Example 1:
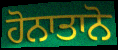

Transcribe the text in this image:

ਹੋਨਾਤਾਨੋ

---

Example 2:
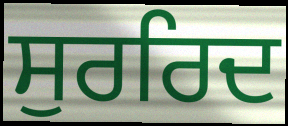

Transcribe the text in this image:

ਸੁਰਰਿਦ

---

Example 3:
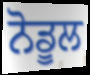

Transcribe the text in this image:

ਨੋਡੂਲ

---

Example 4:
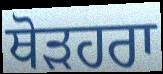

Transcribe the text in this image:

ਥੋੜਹਰਾ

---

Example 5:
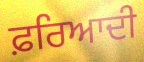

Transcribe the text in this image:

ਫ਼ਰਿਆਦੀ